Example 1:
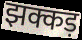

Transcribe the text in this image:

झक्कड़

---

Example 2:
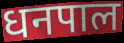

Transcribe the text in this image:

धनपाल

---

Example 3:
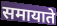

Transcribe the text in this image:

समायाते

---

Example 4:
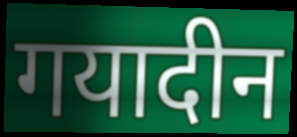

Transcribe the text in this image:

गयादीन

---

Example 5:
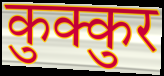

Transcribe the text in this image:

कुक्कुर